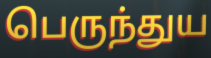
பெருந்துய